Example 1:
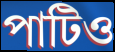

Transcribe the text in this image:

পাটিও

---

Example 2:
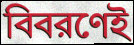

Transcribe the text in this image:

বিবরণেই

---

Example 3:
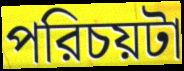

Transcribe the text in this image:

পরিচয়টা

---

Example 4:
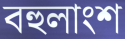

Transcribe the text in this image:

বহুলাংশ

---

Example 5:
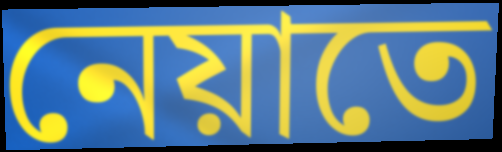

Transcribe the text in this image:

নেয়াতে